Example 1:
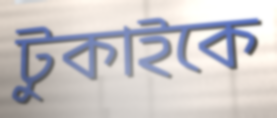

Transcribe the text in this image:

টুকাইকে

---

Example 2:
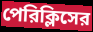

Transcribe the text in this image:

পেরিক্লিসের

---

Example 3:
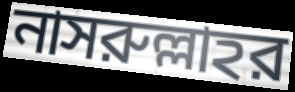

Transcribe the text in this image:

নাসরুল্লাহর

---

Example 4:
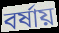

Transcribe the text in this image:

বর্ষায়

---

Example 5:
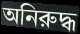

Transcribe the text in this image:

অনিরুদ্ধ